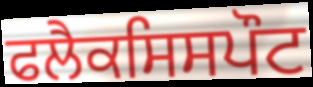
ਫਲੈਕਸਿਸਪੌਟ